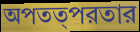
অপতত্পরতার